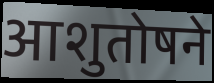
आशुतोषने